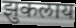
झुकलाय